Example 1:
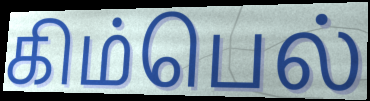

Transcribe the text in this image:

கிம்பெல்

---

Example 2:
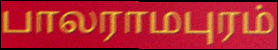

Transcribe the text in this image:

பாலராமபுரம்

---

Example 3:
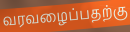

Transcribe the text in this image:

வரவழைப்பதற்கு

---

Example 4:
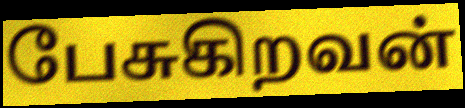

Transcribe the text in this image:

பேசுகிறவன்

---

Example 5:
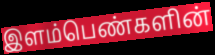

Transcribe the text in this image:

இளம்பெண்களின்